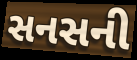
સનસની